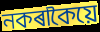
নকৰাকৈয়ে